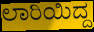
ಲಾರಿಯಿದ್ದ